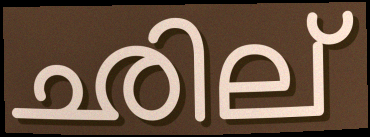
ഛില്